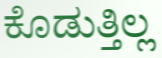
ಕೊಡುತ್ತಿಲ್ಲ